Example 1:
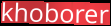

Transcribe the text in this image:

khoborer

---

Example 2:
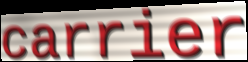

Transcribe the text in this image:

carrier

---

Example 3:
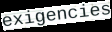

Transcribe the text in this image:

exigencies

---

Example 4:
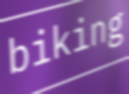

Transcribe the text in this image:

biking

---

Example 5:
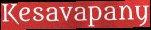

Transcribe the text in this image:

Kesavapany